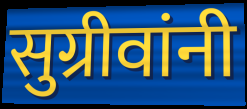
सुग्रीवांनी